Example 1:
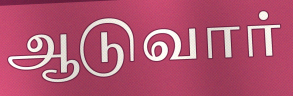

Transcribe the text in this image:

ஆடுவார்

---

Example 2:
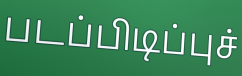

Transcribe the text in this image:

படப்பிடிப்புச்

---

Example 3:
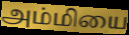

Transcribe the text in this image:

அம்மியை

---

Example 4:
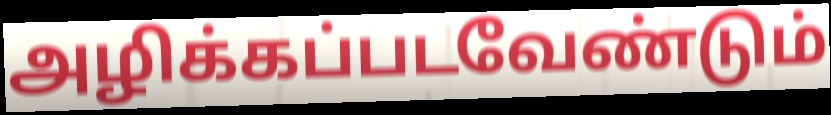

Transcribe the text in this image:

அழிக்கப்படவேண்டும்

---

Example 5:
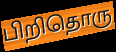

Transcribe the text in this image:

பிறிதொரு